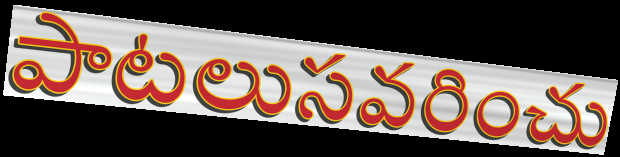
పాటలుసవరించు